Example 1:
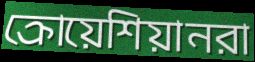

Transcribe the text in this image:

ক্রোয়েশিয়ানরা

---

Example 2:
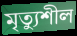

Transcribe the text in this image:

মৃত্যুশীল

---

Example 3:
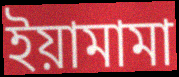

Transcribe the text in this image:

ইয়ামামা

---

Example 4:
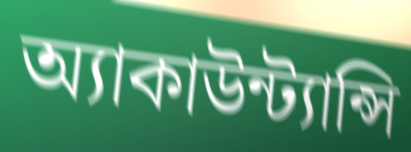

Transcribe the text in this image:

অ্যাকাউন্ট্যান্সি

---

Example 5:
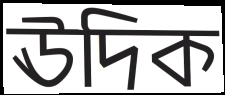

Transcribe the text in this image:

ঊদিক